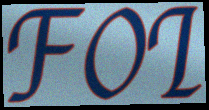
FOI